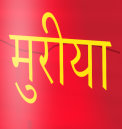
मुरीया